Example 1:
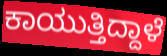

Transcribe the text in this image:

ಕಾಯುತ್ತಿದ್ದಾಳೆ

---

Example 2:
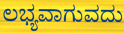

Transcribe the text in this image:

ಲಭ್ಯವಾಗುವದು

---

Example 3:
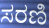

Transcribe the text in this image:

ಸರಣಿ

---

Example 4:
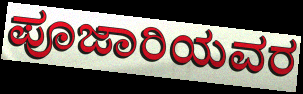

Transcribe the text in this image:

ಪೂಜಾರಿಯವರ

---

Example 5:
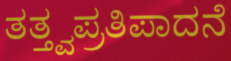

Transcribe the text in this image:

ತತ್ತ್ವಪ್ರತಿಪಾದನೆ